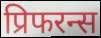
प्रिफरन्स